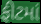
ફીટમાં